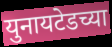
युनायटेडच्या